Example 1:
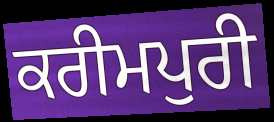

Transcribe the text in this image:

ਕਰੀਮਪੁਰੀ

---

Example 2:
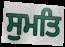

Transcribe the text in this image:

ਸੁਮਤਿ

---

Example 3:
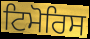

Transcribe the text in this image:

ਟਿਮੋਰਿਸ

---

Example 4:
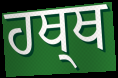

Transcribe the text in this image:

ਹਥ੍ਥ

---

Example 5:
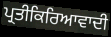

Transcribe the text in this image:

ਪ੍ਰਤੀਕਿਰਿਆਵਾਦੀ